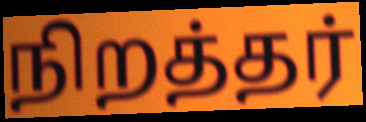
நிறத்தர்